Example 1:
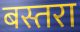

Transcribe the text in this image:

बस्तरा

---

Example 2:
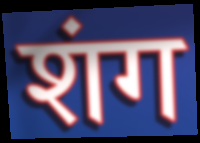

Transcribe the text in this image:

शंग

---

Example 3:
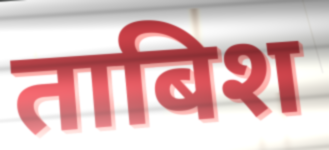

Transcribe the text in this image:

ताबिश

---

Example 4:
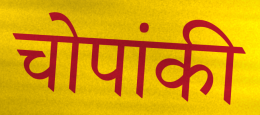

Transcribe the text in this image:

चोपांकी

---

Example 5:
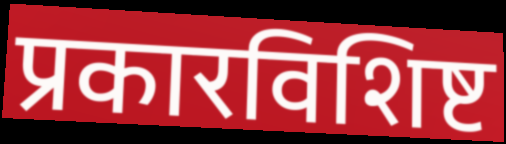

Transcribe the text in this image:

प्रकारविशिष्ट